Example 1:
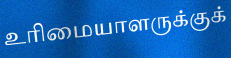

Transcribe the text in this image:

உரிமையாளருக்குக்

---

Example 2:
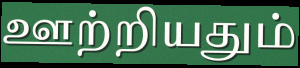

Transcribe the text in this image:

ஊற்றியதும்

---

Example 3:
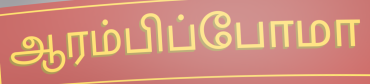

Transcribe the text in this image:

ஆரம்பிப்போமா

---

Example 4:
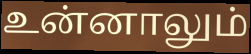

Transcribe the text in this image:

உன்னாலும்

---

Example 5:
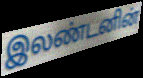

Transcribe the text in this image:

இலண்டனின்